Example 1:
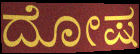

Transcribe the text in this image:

ದೋಷ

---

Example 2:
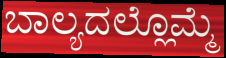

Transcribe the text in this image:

ಬಾಲ್ಯದಲ್ಲೊಮ್ಮೆ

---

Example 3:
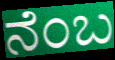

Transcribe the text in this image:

ನೆಂಬ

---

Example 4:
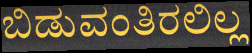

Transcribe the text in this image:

ಬಿಡುವಂತಿರಲಿಲ್ಲ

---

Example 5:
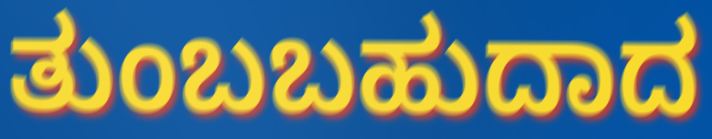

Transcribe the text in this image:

ತುಂಬಬಹುದಾದ